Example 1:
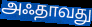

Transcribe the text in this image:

அஃதாவது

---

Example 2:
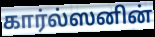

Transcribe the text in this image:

கார்ல்ஸனின்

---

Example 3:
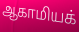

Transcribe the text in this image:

ஆகாமியக்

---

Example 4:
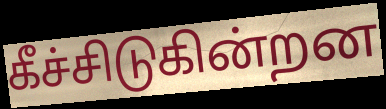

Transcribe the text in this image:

கீச்சிடுகின்றன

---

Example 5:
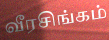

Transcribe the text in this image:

வீரசிங்கம்